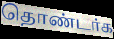
தொண்டர்க